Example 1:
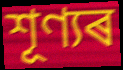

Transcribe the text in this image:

শূণ্যৰ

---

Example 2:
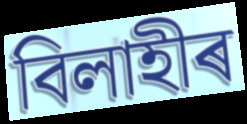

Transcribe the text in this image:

বিলাহীৰ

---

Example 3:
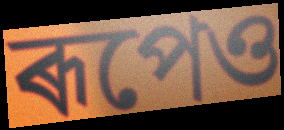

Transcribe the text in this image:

ৰূপেও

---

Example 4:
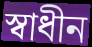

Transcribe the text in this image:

স্বাধীন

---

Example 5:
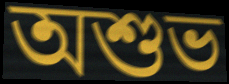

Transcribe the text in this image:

অশুভ